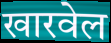
खारवेल